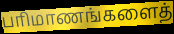
பரிமாணங்களைத்